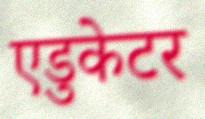
एडुकेटर